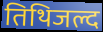
तिथिजल्द